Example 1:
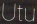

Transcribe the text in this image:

Utu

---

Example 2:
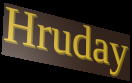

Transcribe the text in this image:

Hruday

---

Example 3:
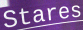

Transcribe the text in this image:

Stares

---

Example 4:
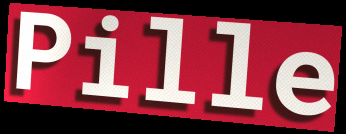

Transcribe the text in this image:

Pille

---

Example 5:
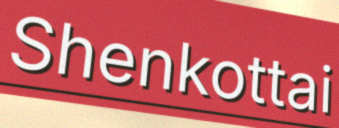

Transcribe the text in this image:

Shenkottai